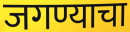
जगण्याचा